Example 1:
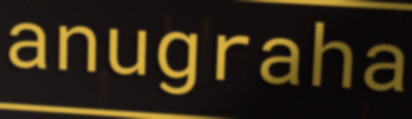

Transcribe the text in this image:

anugraha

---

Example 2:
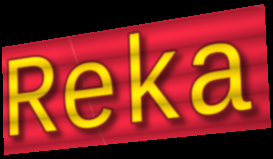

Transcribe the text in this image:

Reka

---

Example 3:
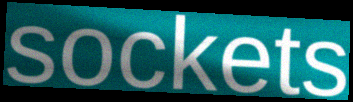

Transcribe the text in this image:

sockets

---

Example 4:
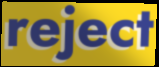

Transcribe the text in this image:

reject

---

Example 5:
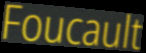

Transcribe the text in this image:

Foucault